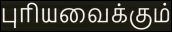
புரியவைக்கும்